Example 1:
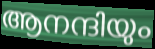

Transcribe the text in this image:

ആനന്ദിയും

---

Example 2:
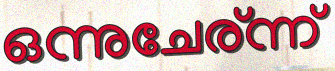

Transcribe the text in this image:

ഒന്നുചേര്ന്ന്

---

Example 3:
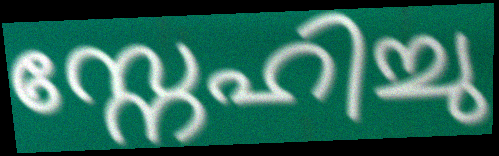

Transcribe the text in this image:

സ്നേഹിച്ചു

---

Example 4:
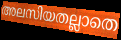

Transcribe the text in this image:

അലസിയതല്ലാതെ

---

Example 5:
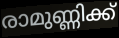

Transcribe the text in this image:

രാമുണ്ണിക്ക്